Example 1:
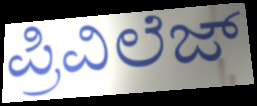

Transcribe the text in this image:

ಪ್ರಿವಿಲೆಜ್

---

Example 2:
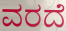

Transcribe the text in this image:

ವರದೆ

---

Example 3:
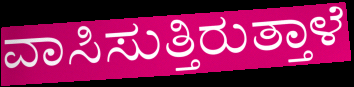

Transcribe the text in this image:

ವಾಸಿಸುತ್ತಿರುತ್ತಾಳೆ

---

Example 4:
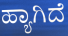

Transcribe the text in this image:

ಹ್ಯಾಗಿದೆ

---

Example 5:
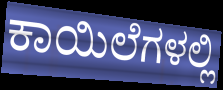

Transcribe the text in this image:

ಕಾಯಿಲೆಗಳಲ್ಲಿ